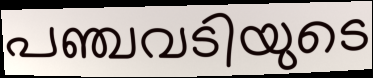
പഞ്ചവടിയുടെ